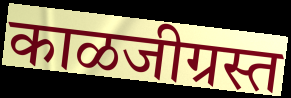
काळजीग्रस्त